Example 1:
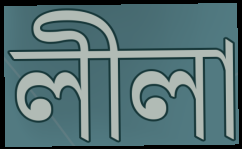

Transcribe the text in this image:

লীলা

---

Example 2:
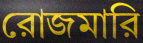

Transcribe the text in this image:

রোজমারি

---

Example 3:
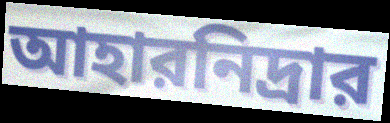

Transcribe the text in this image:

আহারনিদ্রার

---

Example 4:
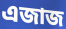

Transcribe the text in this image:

এজাজ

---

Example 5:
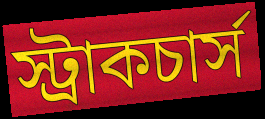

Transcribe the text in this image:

স্ট্রাকচার্স